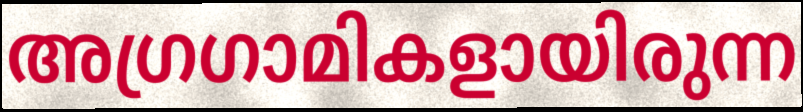
അഗ്രഗാമികളായിരുന്ന